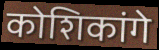
कोशिकांगे